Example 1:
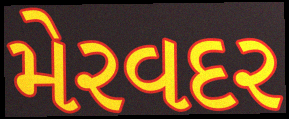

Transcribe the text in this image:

મેરવદર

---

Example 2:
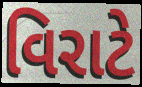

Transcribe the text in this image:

વિરાટે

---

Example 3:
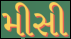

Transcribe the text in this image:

મીસી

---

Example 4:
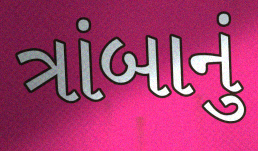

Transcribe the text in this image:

ત્રાંબાનું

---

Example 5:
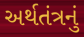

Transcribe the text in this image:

અર્થતંત્રનું